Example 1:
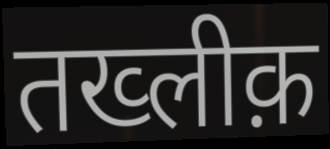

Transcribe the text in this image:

तख्लीक़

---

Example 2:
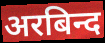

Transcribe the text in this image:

अरबिन्द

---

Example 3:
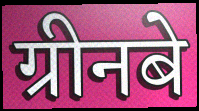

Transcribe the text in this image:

ग्रीनबे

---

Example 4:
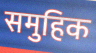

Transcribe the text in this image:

समुहिक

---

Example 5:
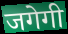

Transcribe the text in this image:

जगेगी